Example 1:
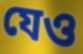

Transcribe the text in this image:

যেও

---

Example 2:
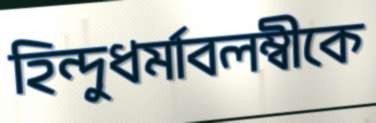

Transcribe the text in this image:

হিন্দুধর্মাবলম্বীকে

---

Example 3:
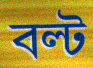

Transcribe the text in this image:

বল্ট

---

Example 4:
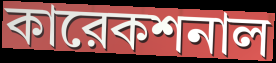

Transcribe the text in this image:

কারেকশনাল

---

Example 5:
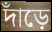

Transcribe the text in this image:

দাঁড়ে